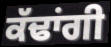
ਕੱਢਾਂਗੀ